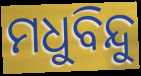
ମଧୁବିନ୍ଦୁ